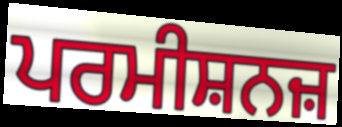
ਪਰਮੀਸ਼ਨਜ਼